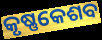
କୃଷ୍ଣକେଶବ